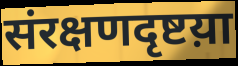
संरक्षणदृष्टय़ा